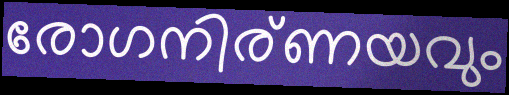
രോഗനിര്ണയവും